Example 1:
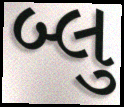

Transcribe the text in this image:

બ્લુ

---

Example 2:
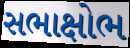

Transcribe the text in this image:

સભાક્ષોભ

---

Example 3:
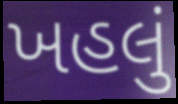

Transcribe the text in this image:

ખહલું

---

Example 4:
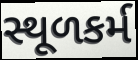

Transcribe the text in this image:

સ્થૂળકર્મ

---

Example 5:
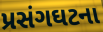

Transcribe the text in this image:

પ્રસંગઘટના